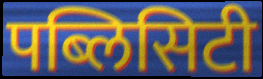
पब्लिसिटी